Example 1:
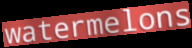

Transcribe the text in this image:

watermelons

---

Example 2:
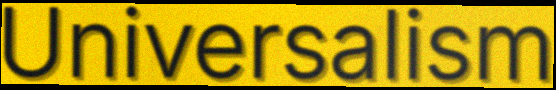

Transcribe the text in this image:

Universalism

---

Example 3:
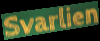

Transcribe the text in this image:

Svarlien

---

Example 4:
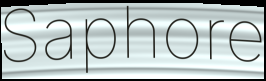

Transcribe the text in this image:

Saphore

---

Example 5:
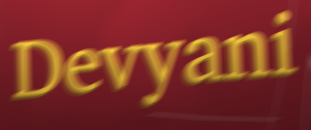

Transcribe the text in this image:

Devyani